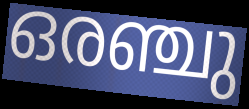
ഒരഞ്ചു